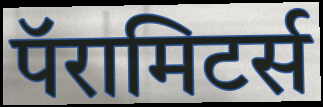
पॅरामिटर्स